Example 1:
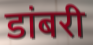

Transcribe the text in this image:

डांबरी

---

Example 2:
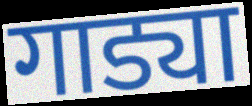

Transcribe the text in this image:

गाड्या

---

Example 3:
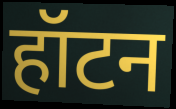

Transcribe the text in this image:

हॉटन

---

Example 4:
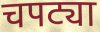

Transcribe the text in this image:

चपट्या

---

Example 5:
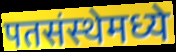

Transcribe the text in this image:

पतसंस्थेमध्ये